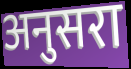
अनुसरा